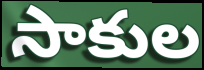
సాకుల